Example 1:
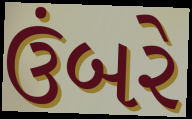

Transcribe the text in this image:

ઉંબરે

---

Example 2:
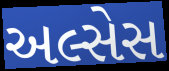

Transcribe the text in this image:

અલ્સેસ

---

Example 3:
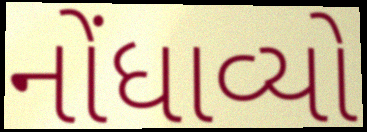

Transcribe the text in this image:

નોંધાવ્યો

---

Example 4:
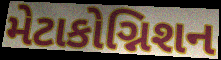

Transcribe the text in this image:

મેટાકોગ્નિશન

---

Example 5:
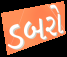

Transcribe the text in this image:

ડબરો